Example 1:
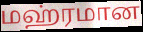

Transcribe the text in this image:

மஹ்ரமான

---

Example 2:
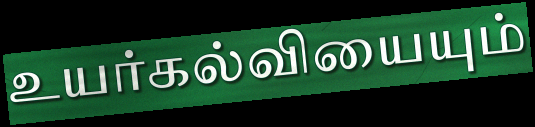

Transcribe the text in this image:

உயர்கல்வியையும்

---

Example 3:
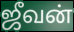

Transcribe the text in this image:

ஜீவன்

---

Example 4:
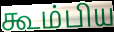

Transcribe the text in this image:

கூம்பிய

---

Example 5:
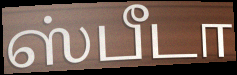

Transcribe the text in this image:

ஸ்பீடா